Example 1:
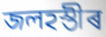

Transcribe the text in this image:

জলহস্তীৰ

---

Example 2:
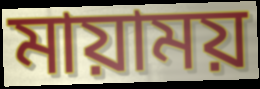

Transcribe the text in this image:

মায়াময়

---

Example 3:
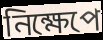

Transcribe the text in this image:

নিক্ষেপে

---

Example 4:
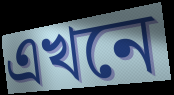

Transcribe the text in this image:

এখনে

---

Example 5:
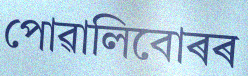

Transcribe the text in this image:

পোৱালিবোৰৰ